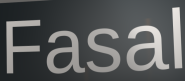
Fasal